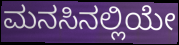
ಮನಸಿನಲ್ಲಿಯೇ